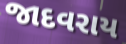
જાદવરાય